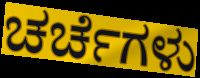
ಚರ್ಚೆಗಳು